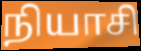
நியாசி